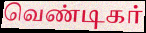
வெண்டிகர்